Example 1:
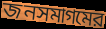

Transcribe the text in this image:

জনসমাগমের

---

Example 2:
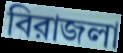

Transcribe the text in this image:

বিরাজলা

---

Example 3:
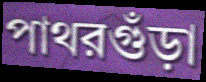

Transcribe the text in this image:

পাথরগুঁড়া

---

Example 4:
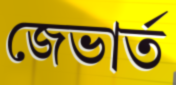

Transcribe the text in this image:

জেভার্ত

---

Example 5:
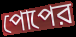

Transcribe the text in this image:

পোপের